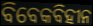
ବିବେକବିହୀନ